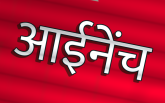
आईनेंच